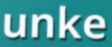
unke